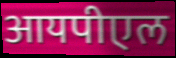
आयपीएल